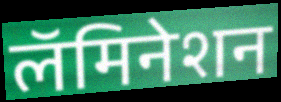
लॅमिनेशन